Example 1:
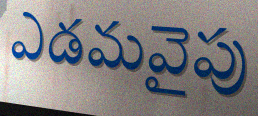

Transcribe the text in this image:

ఎడమవైపు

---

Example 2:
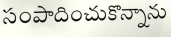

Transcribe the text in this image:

సంపాదించుకొన్నాను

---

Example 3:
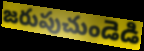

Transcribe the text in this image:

జరుపుచుండెడి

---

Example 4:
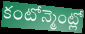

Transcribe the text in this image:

కంటోన్మెంట్లో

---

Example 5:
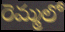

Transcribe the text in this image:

రెమ్మలో